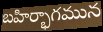
బహిర్భాగమున